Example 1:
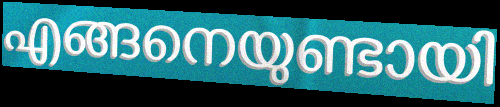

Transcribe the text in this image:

എങ്ങനെയുണ്ടായി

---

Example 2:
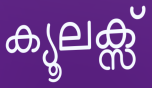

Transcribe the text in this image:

ക്യൂലക്സ്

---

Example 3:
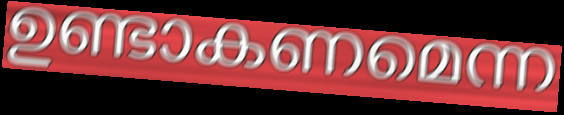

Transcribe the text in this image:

ഉണ്ടാകണമെന്ന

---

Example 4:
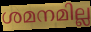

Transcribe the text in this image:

ശമനമില്ല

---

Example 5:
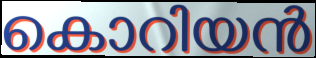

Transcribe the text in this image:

കൊറിയൻ